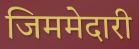
जिममेदारी